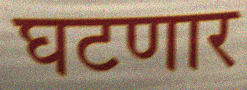
घटणार